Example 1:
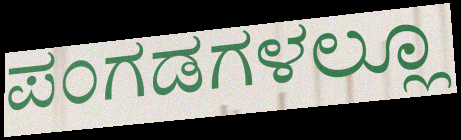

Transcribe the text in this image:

ಪಂಗಡಗಳಲ್ಲೂ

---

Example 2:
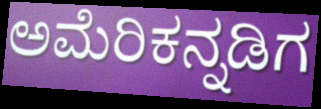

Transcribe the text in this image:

ಅಮೆರಿಕನ್ನಡಿಗ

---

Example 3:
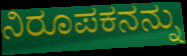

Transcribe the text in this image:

ನಿರೂಪಕನನ್ನು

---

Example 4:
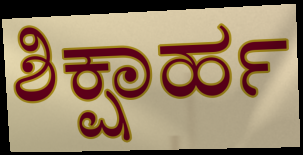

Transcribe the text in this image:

ಶಿಕ್ಷಾರ್ಹ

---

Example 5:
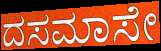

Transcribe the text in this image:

ದಸಮಾಸೇ